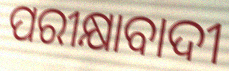
ପରୀକ୍ଷାବାଦୀ